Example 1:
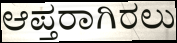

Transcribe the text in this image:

ಆಪ್ತರಾಗಿರಲು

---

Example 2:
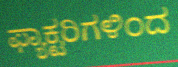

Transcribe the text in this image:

ಫ್ಯಾಕ್ಟರಿಗಳಿಂದ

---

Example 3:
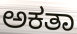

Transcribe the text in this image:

ಅಕತಾ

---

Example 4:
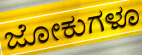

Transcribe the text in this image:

ಜೋಕುಗಳೂ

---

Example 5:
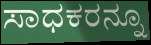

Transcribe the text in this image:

ಸಾಧಕರನ್ನೂ